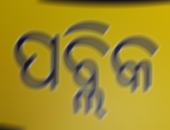
ପବ୍ଲିକ